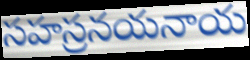
సహస్రనయనాయ